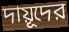
দায়ূদের